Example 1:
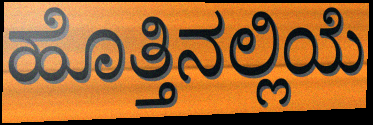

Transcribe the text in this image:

ಹೊತ್ತಿನಲ್ಲಿಯೆ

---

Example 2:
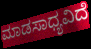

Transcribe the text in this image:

ಮಾಡಸಾಧ್ಯವಿದೆ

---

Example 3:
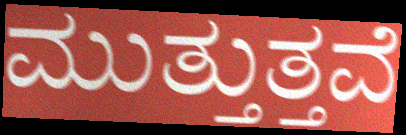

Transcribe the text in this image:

ಮುತ್ತುತ್ತವೆ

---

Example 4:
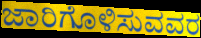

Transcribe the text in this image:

ಜಾರಿಗೊಳಿಸುವವರ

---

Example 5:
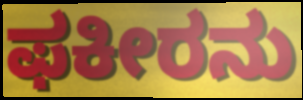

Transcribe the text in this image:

ಫಕೀರನು